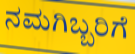
ನಮಗಿಬ್ಬರಿಗೆ